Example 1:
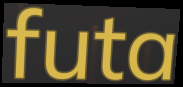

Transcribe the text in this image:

futa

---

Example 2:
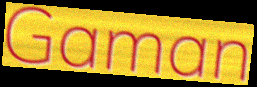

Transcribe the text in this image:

Gaman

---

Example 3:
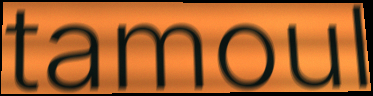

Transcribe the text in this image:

tamoul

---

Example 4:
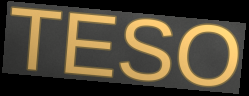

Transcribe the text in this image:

TESO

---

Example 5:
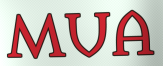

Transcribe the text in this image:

MUA